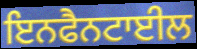
ਇਨਫੈਨਟਾਈਲ